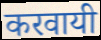
करवायी